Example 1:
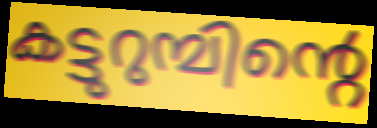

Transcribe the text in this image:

കട്ടുറുമ്പിന്റെ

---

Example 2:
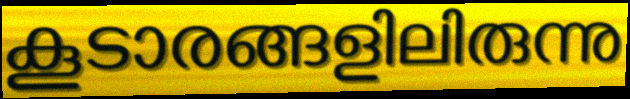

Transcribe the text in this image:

കൂടാരങ്ങളിലിരുന്നു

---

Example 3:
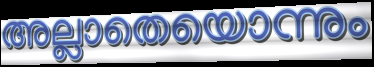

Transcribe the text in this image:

അല്ലാതെയൊന്നും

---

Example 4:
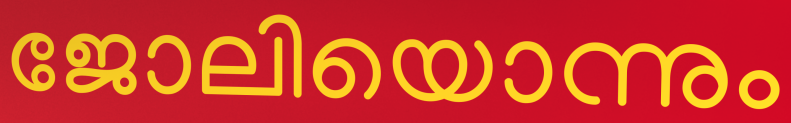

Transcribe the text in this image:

ജോലിയൊന്നും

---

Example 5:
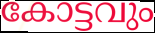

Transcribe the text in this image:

കോട്ടവും